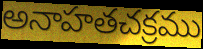
అనాహతచక్రము